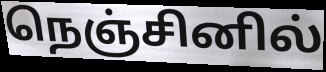
நெஞ்சினில்